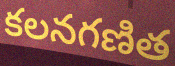
కలనగణిత